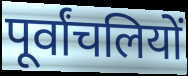
पूर्वांचलियों